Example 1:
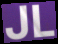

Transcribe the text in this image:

JL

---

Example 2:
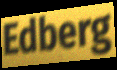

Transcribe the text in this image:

Edberg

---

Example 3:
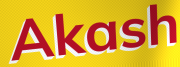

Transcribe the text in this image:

Akash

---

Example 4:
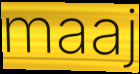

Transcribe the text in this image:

maaj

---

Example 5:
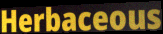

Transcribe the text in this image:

Herbaceous